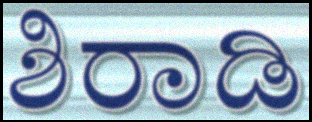
ಶಿರಾಡಿ